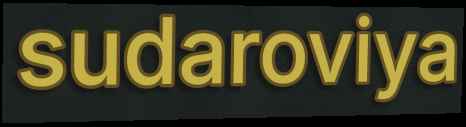
sudaroviya